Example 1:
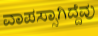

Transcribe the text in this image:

ವಾಪಸ್ಸಾಗಿದ್ದೆವು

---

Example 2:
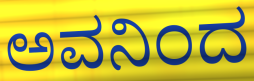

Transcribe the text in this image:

ಅವನಿಂದ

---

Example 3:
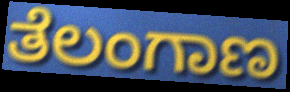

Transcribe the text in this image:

ತೆಲಂಗಾಣ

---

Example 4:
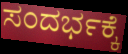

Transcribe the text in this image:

ಸಂದರ್ಭಕ್ಕೆ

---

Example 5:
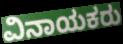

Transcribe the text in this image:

ವಿನಾಯಕರು